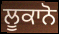
ਲੂਕਾਨੋ